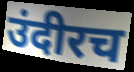
उंदीरच